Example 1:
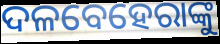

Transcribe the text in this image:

ଦଳବେହେରାଙ୍କୁ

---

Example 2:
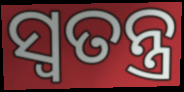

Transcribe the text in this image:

ସ୍ୱତନ୍ତ୍ର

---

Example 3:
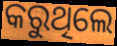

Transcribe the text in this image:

କରୁଥିଲେ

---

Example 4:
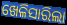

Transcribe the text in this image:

ଖେଳିସାରିଲା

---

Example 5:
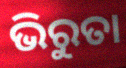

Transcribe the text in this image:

ଭିରୁତା